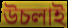
উচলাই